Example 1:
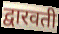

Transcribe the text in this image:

द्वारवती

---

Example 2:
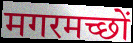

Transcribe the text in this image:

मगरमच्छों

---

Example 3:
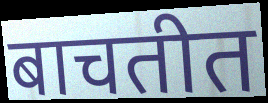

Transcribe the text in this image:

बाचतीत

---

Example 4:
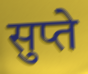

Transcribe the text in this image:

सुप्ते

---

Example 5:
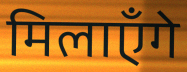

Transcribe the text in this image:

मिलाएँगे